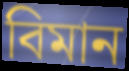
বিমান